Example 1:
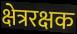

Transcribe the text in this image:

क्षेत्ररक्षक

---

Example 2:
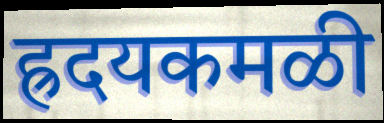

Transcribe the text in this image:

ह्रदयकमळी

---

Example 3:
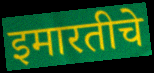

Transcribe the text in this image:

इमारतीचे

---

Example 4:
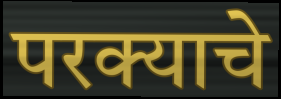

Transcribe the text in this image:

परक्याचे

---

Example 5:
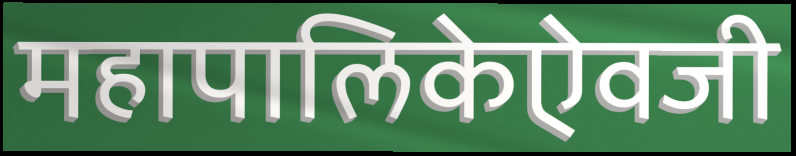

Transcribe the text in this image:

महापालिकेऐवजी